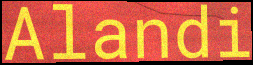
Alandi